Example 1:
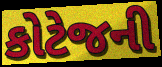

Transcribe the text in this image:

કોટેજની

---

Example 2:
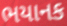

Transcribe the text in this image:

ભયાનક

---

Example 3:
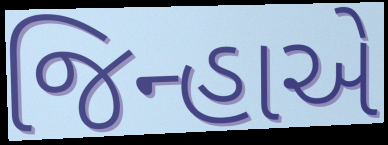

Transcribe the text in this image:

જિન્હાએ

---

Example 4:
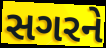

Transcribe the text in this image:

સગરને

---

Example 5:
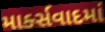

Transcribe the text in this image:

માર્ક્સવાદમાં